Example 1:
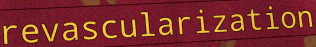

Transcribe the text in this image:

revascularization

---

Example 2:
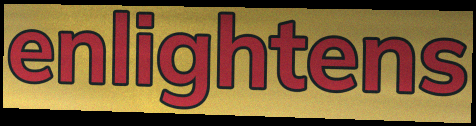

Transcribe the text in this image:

enlightens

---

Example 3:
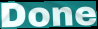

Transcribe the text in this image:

Done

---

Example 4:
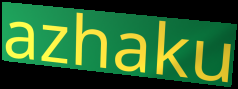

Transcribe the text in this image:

azhaku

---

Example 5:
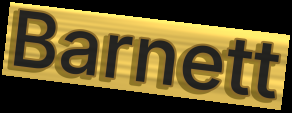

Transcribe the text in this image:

Barnett